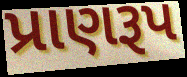
પ્રાણરૂપ